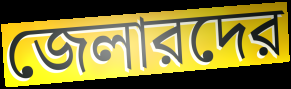
জেলারদের